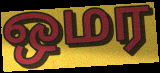
ஒமர